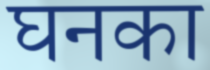
घनका